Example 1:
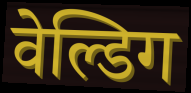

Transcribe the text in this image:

वेल्डिग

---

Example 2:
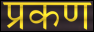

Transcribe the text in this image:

प्रकण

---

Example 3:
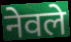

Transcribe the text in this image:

नेवले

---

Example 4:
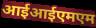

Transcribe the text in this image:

आईआईएमएम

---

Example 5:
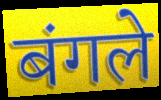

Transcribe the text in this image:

बंगले